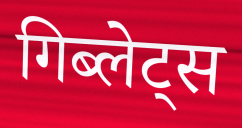
गिब्लेट्स